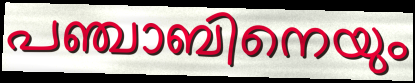
പഞ്ചാബിനെയും